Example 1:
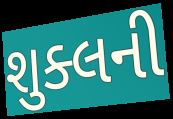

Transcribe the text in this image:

શુક્લની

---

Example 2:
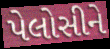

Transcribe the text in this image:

પેલોસીને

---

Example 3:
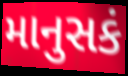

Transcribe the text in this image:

માનુસકં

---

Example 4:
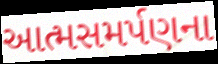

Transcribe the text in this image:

આત્મસમર્પણના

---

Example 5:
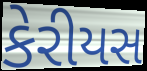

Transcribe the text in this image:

કેરીયસ